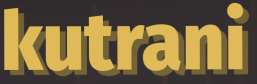
kutrani